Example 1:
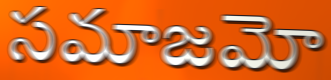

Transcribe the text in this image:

సమాజమో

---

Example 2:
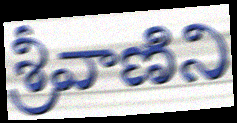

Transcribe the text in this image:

శ్రీవాణిని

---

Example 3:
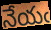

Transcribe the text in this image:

నేయఁ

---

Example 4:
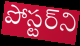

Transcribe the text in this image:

పోస్టర్‌ని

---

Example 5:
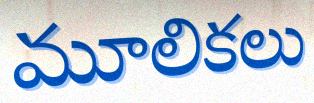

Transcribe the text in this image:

మూలికలు